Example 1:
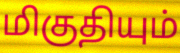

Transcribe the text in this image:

மிகுதியும்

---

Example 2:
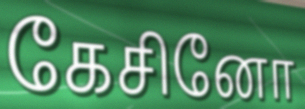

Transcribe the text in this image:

கேசினோ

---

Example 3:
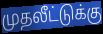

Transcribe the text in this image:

முதலீட்டுக்கு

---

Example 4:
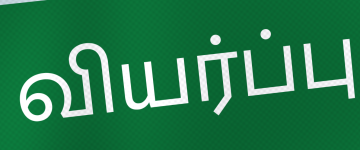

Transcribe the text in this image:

வியர்ப்பு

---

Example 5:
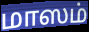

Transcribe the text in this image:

மாஸம்